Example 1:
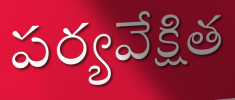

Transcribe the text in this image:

పర్యవేక్షిత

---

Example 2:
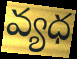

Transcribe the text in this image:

వ్యధ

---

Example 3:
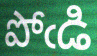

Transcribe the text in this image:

పోఁడి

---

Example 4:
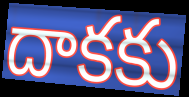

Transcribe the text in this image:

దాకకు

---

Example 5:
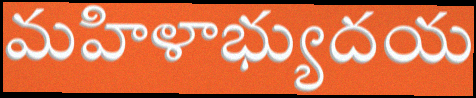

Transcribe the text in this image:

మహిళాభ్యుదయ